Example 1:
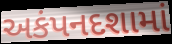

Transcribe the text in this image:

અકંપનદશામાં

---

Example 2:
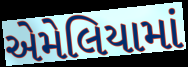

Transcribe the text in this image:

એમેલિયામાં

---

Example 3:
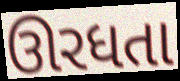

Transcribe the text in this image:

ઊરધતા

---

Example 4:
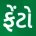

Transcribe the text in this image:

ફેંટો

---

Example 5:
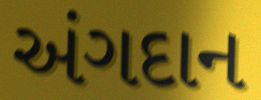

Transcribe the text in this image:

અંગદાન